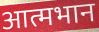
आत्मभान